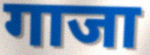
गाजा